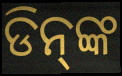
ଡିନ୍‌ଙ୍କ